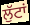
ਲੁੱਟਾਂ